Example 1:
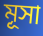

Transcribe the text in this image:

মূসা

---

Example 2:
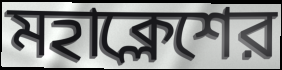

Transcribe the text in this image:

মহাক্লেশের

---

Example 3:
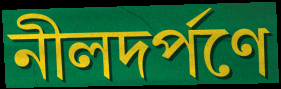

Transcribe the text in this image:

নীলদর্পণে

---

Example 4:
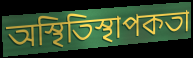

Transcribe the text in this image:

অস্থিতিস্থাপকতা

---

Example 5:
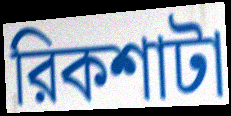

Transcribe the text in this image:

রিকশাটা